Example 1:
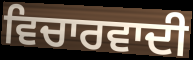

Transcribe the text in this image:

ਵਿਚਾਰਵਾਦੀ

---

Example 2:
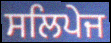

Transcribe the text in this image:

ਸਲਿਪੇਜ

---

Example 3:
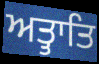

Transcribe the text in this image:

ਅਤ੍ਤਾਤਿ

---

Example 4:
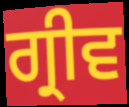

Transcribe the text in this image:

ਗ੍ਰੀਵ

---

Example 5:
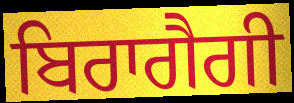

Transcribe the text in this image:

ਬਿਰਾਗੈਗੀ